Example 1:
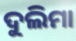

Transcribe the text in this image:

ଦୁଲିମା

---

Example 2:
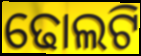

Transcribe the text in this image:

ଢୋଲଟି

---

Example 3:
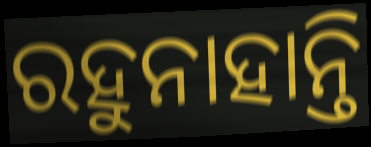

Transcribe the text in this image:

ରହୁନାହାନ୍ତି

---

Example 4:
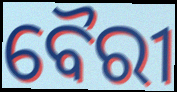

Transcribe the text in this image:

ବୈରୀ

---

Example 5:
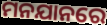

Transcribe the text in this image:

ମନଯାନରେ